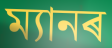
ম্যানৰ